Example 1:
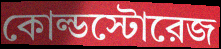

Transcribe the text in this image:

কোল্ডস্টোরেজ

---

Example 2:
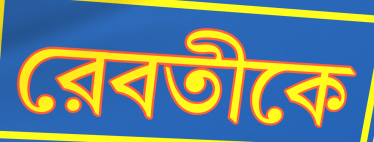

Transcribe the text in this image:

রেবতীকে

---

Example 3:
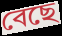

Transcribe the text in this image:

বেছে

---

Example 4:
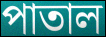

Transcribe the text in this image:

পাতাল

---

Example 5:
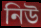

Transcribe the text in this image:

নিউ